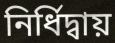
নির্ধিদ্বায়